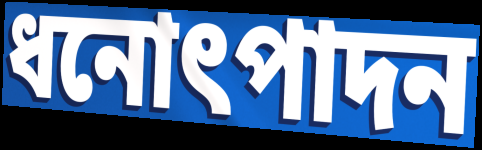
ধনোৎপাদন